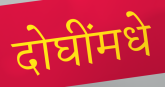
दोघींमधे